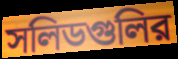
সলিডগুলির